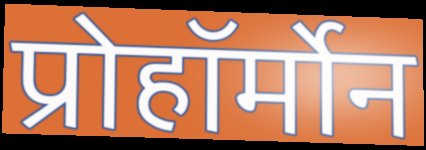
प्रोहॉर्मोन